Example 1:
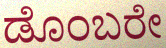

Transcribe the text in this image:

ಡೊಂಬರೇ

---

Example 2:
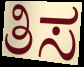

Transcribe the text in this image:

ತಿಸ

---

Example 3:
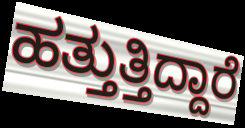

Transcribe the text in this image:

ಹತ್ತುತ್ತಿದ್ದಾರೆ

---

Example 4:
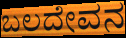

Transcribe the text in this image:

ಬಲದೇವನ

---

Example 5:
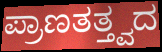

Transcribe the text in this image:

ಪ್ರಾಣತತ್ತ್ವದ